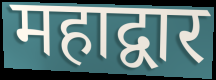
महाद्वार